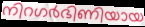
നിറഗർഭിണിയായ